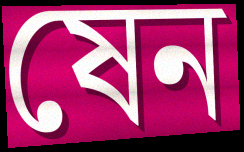
ষেন